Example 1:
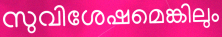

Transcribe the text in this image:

സുവിശേഷമെങ്കിലും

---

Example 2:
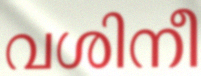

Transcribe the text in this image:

വശിനീ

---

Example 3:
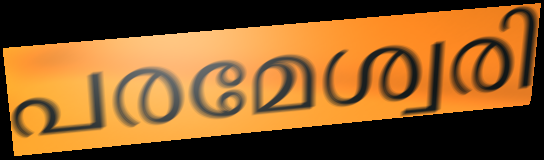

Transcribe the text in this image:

പരമേശ്വരി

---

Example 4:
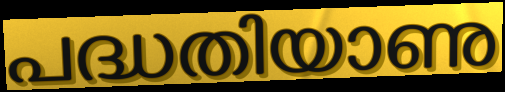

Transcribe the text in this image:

പദ്ധതിയാണു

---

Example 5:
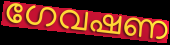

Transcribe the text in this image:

ഗേവഷണ